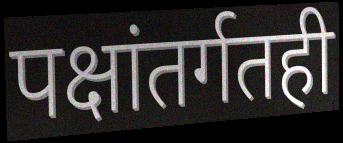
पक्षांतर्गतही